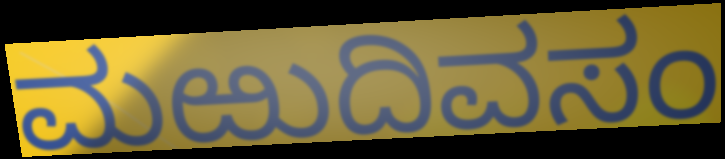
ಮಱುದಿವಸಂ